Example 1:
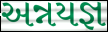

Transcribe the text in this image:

અન્નયજ્ઞ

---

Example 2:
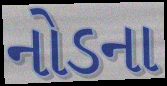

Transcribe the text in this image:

નોડના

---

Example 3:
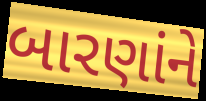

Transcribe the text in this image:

બારણાંને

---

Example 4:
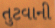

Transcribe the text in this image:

તુટવાની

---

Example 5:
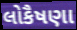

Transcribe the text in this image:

લોકૈષણા